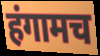
हंगामच